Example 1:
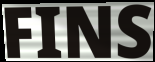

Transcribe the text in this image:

FINS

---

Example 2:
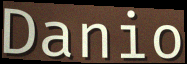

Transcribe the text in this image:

Danio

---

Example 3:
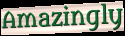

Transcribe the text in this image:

Amazingly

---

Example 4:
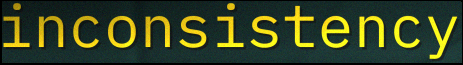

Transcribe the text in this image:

inconsistency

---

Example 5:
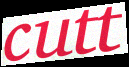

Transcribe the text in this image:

cutt